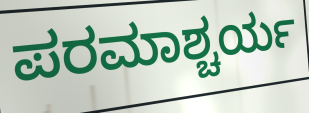
ಪರಮಾಶ್ಚರ್ಯ